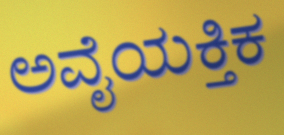
ಅವೈಯಕ್ತಿಕ